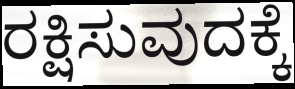
ರಕ್ಷಿಸುವುದಕ್ಕೆ